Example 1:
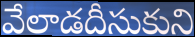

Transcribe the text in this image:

వేలాడదీసుకుని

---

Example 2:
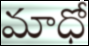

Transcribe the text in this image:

మాధో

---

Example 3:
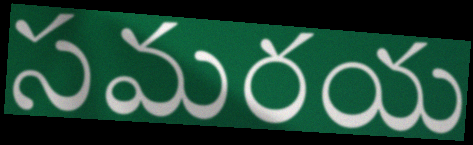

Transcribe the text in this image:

సమరయ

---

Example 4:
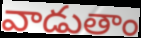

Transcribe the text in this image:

వాడుతాం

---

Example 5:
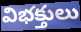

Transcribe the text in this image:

విభక్తులు